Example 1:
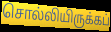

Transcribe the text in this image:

சொல்லியிருக்கப்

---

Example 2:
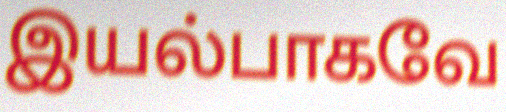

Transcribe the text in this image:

இயல்பாகவே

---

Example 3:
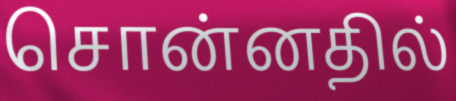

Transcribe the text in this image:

சொன்னதில்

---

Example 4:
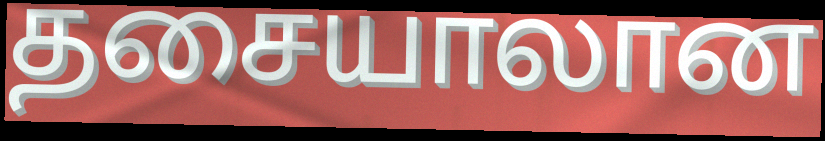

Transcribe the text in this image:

தசையாலான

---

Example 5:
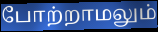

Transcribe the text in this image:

போற்றாமலும்